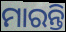
ମାରନ୍ତି